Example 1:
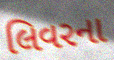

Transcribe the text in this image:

લિવરના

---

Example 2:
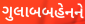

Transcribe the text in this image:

ગુલાબબહેનને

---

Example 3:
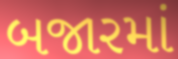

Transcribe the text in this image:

બજારમાં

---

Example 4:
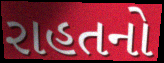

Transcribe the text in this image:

રાહતનો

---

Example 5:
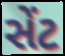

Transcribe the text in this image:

સેંટ